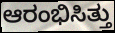
ಆರಂಭಿಸಿತ್ತು